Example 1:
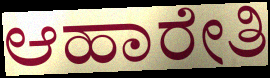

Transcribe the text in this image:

ಆಹಾರೇತಿ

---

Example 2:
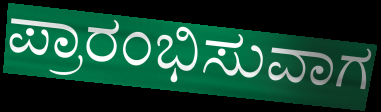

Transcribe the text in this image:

ಪ್ರಾರಂಭಿಸುವಾಗ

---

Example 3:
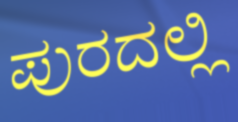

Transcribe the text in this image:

ಪುರದಲ್ಲಿ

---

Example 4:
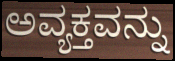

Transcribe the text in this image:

ಅವ್ಯಕ್ತವನ್ನು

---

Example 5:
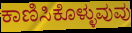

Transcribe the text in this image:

ಕಾಣಿಸಿಕೊಳ್ಳುವುವು